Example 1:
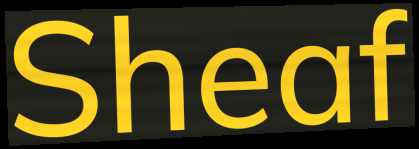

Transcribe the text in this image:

Sheaf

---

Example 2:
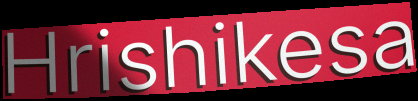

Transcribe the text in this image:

Hrishikesa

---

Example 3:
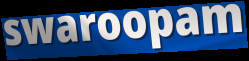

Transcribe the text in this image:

swaroopam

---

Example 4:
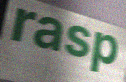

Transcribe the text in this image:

rasp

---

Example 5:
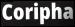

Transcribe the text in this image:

Coripha